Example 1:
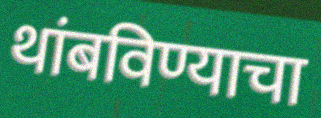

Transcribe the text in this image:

थांबविण्याचा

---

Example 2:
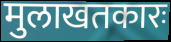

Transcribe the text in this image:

मुलाखतकारः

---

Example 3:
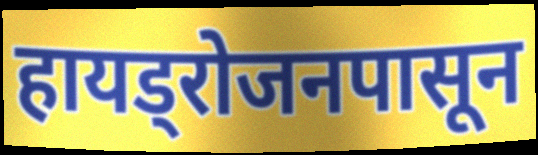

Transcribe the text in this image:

हायड्रोजनपासून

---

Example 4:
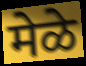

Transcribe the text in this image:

मेळे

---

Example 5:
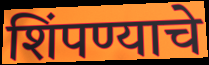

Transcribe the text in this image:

शिंपण्याचे